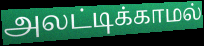
அலட்டிக்காமல்